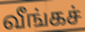
வீங்கச்